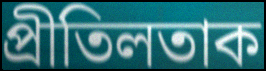
প্ৰীতিলতাক